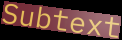
Subtext